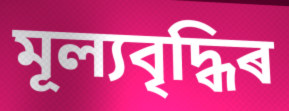
মূল্যবৃদ্ধিৰ